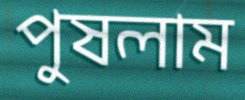
পুষলাম